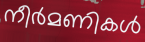
നീർമണികൾ